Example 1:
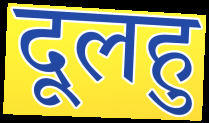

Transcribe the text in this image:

दूलहु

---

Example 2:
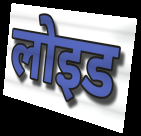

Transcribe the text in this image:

लोइड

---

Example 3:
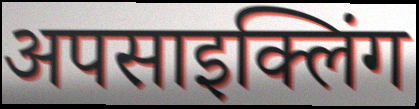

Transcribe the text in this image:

अपसाइक्लिंग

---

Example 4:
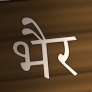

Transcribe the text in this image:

भैर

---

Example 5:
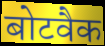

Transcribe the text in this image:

बोटवैक